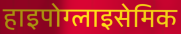
हाइपोग्लाइसेमिक